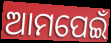
ଆମପେଇଁ